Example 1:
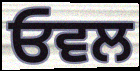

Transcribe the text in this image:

ਓਵਲ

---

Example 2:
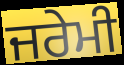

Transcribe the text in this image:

ਜਰੇਮੀ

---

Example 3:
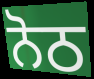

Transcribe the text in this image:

ਨੋਠ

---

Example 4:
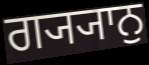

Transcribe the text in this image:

ਗ੍ਯ੍ਯਾਨੁ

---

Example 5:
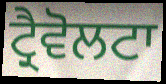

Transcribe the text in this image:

ਟ੍ਰੈਵੋਲਟਾ